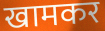
खामकर